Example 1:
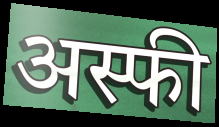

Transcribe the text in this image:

अस्फी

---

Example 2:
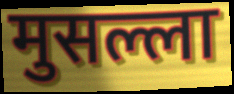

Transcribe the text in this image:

मुसल्ला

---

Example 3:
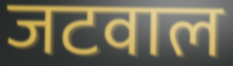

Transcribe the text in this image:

जटवाल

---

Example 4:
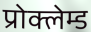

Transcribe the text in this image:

प्रोक्लेम्ड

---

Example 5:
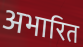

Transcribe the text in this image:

अभारित